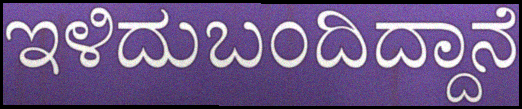
ಇಳಿದುಬಂದಿದ್ದಾನೆ